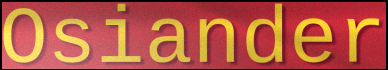
Osiander